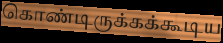
கொண்டிருக்கக்கூடிய